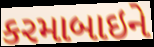
કરમાબાઇને